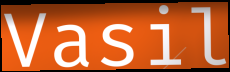
Vasil